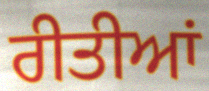
ਰੀਤੀਆਂ